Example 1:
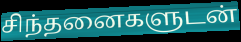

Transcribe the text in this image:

சிந்தனைகளுடன்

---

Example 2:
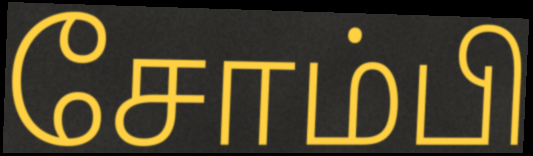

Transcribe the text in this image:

சோம்பி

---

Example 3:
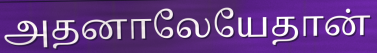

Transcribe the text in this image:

அதனாலேயேதான்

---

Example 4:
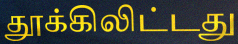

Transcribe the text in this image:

தூக்கிலிட்டது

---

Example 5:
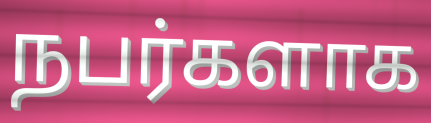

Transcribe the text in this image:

நபர்களாக